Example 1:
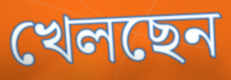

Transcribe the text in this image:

খেলছেন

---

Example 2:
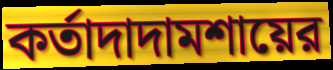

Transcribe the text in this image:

কর্তাদাদামশায়ের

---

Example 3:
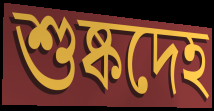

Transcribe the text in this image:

শুষ্কদেহ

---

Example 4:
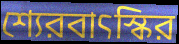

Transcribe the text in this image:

শ্যেরবাৎস্কির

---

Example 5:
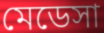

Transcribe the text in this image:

মেডেসা